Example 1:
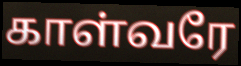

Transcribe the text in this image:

காள்வரே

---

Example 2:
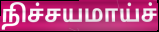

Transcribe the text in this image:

நிச்சயமாய்ச்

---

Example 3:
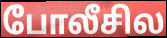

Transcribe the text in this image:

போலீசில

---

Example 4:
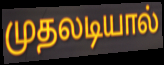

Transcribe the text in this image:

முதலடியால்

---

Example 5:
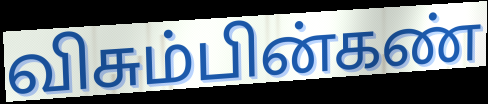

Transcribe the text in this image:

விசும்பின்கண்